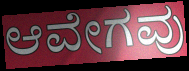
ಆವೇಗವು